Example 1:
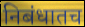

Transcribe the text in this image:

निबंधातच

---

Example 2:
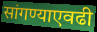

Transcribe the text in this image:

सांगण्याएवढी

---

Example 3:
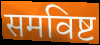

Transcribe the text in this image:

समविष्ट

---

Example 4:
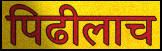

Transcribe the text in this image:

पिढीलाच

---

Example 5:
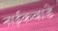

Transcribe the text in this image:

नाईकवाडे